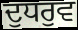
ਦੁਧਰੁਵ